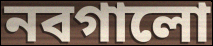
নবগালো